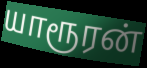
யாரூரன்